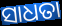
ସାଧତା